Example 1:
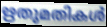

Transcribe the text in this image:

ഋതുമതികൾ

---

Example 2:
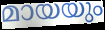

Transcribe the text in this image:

മായയും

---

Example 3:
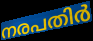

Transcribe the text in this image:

നരപതിർ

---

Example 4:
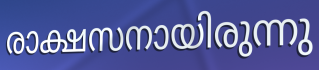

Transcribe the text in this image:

രാക്ഷസനായിരുന്നു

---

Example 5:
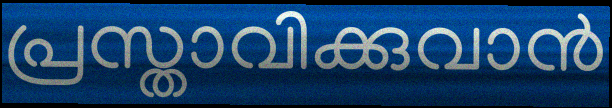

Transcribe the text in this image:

പ്രസ്താവിക്കുവാൻ